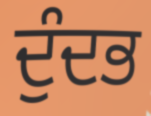
ਦੁੰਦਭ